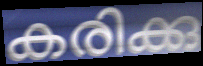
കരിക്കു